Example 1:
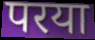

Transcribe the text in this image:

परया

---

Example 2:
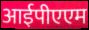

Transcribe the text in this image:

आईपीएएम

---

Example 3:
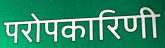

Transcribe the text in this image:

परोपकारिणी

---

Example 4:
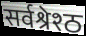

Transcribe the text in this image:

सर्वश्रेश्ठ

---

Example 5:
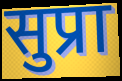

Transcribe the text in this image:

सुप्रा